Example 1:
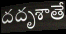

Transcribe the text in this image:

దదృశాతే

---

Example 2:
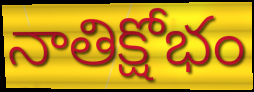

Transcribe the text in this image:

నాతిక్షోభం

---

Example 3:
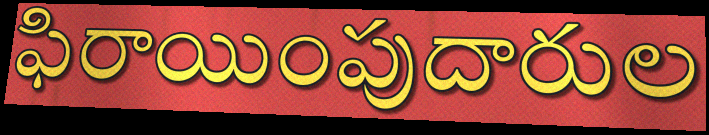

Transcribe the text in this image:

ఫిరాయింపుదారుల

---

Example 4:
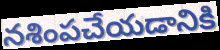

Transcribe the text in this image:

నశింపచేయడానికి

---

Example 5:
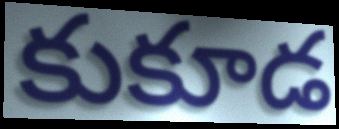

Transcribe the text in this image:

కుకూడ